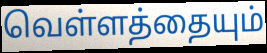
வெள்ளத்தையும்